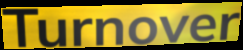
Turnover